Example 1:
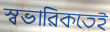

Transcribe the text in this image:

স্বভাৱিকতেই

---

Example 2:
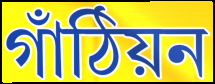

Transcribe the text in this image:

গাঁঠিয়ন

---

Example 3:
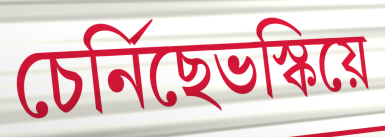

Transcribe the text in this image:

চেৰ্নিছেভস্কিয়ে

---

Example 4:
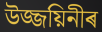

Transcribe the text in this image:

উজ্জয়িনীৰ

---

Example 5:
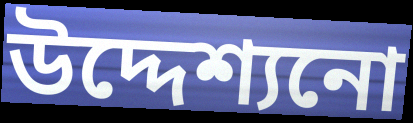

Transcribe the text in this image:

উদ্দেশ্যনো